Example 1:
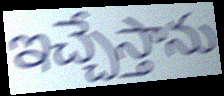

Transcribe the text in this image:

ఇచ్చేస్తాను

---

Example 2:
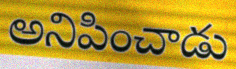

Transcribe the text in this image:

అనిపించాడు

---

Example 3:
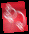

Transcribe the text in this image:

ళ్ళీ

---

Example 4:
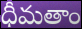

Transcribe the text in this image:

ధీమతాం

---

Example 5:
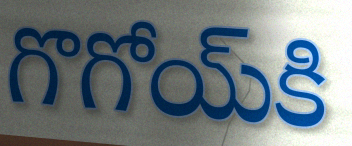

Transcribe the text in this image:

గొగోయ్‌కి